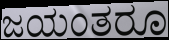
ಜಯಂತರೂ